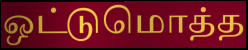
ஒட்டுமொத்த